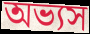
অভ্যস